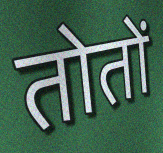
तोतों